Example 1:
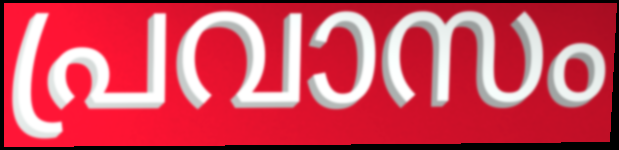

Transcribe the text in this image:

പ്രവാസം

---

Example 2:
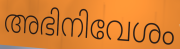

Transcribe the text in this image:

അഭിനിവേശം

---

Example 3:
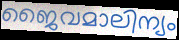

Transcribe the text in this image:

ജൈവമാലിന്യം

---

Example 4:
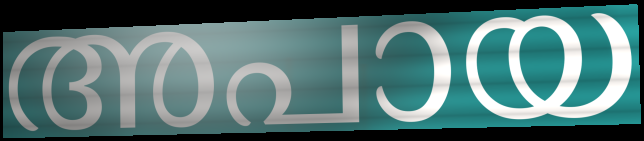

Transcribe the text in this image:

അപായ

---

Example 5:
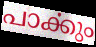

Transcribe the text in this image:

പാൎക്കും